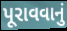
પૂરાવવાનું